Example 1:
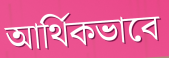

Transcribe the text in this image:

আৰ্থিকভাবে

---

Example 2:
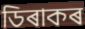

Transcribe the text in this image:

ডিৰাকৰ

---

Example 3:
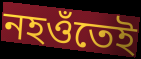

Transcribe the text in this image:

নহওঁতেই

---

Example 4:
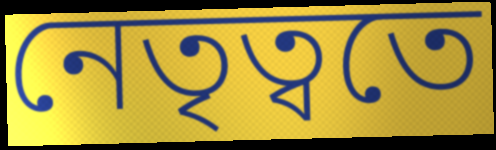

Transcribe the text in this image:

নেতৃত্বতে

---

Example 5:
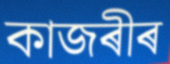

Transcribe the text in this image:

কাজৰীৰ